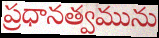
ప్రధానత్వమును